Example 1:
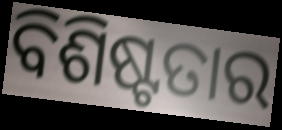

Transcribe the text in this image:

ବିଶିଷ୍ଟତାର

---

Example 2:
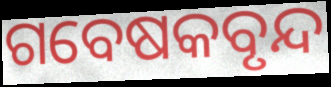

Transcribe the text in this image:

ଗବେଷକବୃନ୍ଦ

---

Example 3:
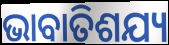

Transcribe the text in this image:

ଭାବାତିଶଯ୍ୟ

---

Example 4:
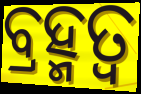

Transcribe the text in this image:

ବ୍ରହ୍ମତ୍ୱ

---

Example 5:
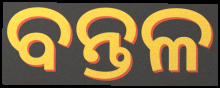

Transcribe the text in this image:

ବନ୍ତଳ